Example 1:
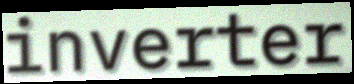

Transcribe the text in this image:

inverter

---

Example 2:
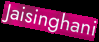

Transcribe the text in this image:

Jaisinghani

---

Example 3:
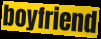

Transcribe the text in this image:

boyfriend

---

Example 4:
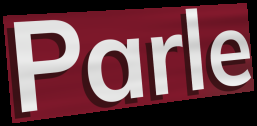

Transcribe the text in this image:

Parle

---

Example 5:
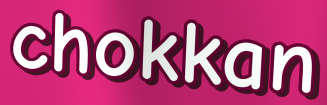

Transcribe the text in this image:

chokkan